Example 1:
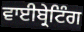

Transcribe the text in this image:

ਵਾਈਬ੍ਰੇਟਿੰਗ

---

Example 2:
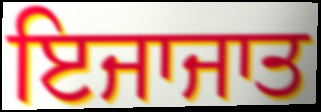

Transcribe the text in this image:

ਇਜਾਜਾਤ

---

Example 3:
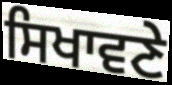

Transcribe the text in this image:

ਸਿਖਾਵਣੇ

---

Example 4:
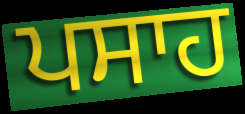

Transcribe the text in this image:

ਪਸਾਹ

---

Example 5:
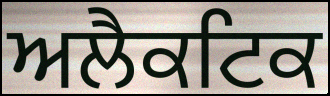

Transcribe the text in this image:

ਅਲੈਕਟਿਕ